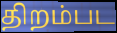
திறம்பட